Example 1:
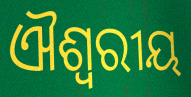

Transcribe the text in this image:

ଐଶ୍ୱରୀୟ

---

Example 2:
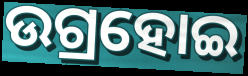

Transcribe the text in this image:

ଉଗ୍ରହୋଇ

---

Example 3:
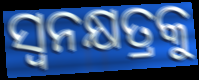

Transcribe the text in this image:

ସ୍ୱନକ୍ଷତ୍ରକୁ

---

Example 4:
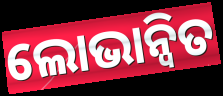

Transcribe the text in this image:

ଲୋଭାନ୍ୱିତ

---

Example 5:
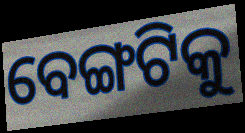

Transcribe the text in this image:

ବେଙ୍ଗଟିକୁ